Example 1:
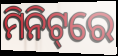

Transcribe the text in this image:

ମିନିଟ୍‌ରେ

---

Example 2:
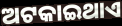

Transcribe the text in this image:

ଅଟକାଇଥାଏ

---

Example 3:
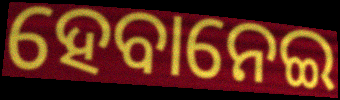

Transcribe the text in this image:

ହେବାନେଇ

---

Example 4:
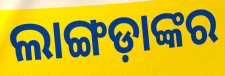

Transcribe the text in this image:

ଲାଙ୍ଗଡ଼ାଙ୍କର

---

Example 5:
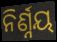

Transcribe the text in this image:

ନିର୍ଣ୍ନୟ